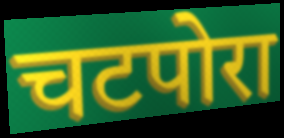
चटपोरा